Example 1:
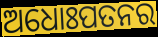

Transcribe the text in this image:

ଅଧୋଃପତନର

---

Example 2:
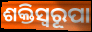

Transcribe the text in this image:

ଶକ୍ତିସ୍ବରୂପା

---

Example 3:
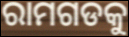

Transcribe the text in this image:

ରାମଗଡକୁ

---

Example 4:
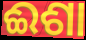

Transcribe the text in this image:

ଈଶା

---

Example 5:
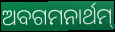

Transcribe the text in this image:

ଅବଗମନାର୍ଥମ୍